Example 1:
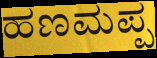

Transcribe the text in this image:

ಹಣಮಪ್ಪ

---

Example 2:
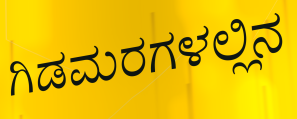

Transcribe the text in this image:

ಗಿಡಮರಗಳಲ್ಲಿನ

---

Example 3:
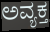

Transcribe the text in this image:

ಅವ್ಯಕ್ತ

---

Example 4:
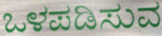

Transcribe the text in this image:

ಒಳಪಡಿಸುವ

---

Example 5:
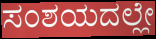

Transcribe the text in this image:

ಸಂಶಯದಲ್ಲೇ